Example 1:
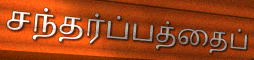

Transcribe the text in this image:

சந்தர்ப்பத்தைப்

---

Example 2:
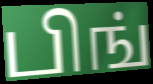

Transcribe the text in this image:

பிங்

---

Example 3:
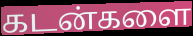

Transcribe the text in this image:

கடன்களை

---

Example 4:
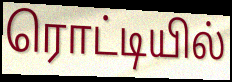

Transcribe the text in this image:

ரொட்டியில்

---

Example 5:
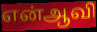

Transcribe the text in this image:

என்ஆவி